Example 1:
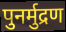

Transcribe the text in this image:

पुनर्मुद्रण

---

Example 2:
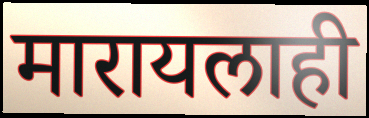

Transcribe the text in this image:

मारायलाही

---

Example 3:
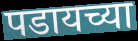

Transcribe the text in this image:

पडायच्या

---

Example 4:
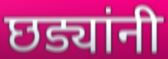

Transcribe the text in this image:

छड्यांनी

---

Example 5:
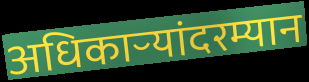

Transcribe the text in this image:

अधिकाऱ्यांदरम्यान